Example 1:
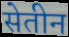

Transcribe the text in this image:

सेतीन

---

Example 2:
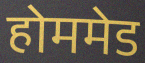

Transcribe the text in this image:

होममेड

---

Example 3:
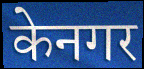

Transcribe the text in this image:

केनगर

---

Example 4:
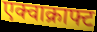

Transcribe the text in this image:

एक्वाक्राफ्ट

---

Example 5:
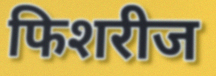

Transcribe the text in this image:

फिशरीज